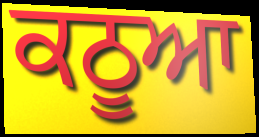
ਕਠੂਆ